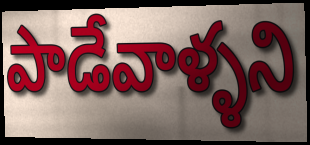
పాడేవాళ్ళని